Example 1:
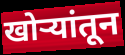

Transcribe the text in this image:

खोऱ्यांतून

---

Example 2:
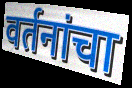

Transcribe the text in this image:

वर्तनांचा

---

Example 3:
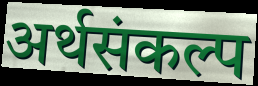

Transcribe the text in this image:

अर्थसंकल्प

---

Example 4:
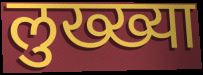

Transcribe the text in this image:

लुख्ख्या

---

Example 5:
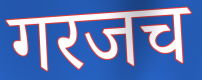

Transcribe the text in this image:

गरजच